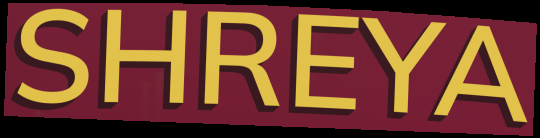
SHREYA